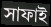
সাফাই